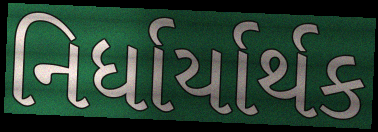
નિર્ધાર્યાર્થક